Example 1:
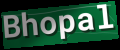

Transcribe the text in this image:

Bhopal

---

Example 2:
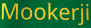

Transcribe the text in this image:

Mookerji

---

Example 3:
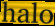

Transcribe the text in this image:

halo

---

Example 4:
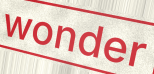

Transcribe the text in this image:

wonder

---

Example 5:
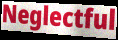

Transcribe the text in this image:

Neglectful